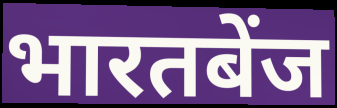
भारतबेंज